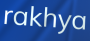
rakhya